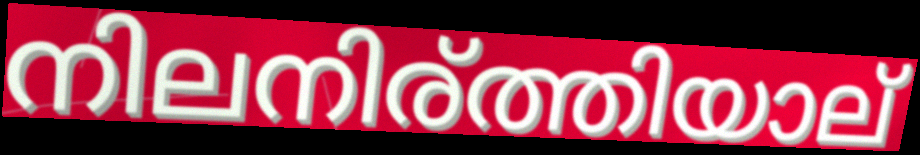
നിലനിര്ത്തിയാല്